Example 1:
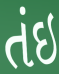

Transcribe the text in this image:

તંઇ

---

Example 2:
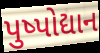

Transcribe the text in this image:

પુષ્પોદ્યાન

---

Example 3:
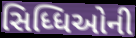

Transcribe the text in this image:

સિધ્ધિઓની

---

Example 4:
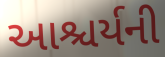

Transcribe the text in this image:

આશ્ચર્યની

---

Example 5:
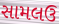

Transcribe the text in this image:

સામલઉ